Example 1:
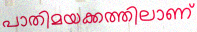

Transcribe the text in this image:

പാതിമയക്കത്തിലാണ്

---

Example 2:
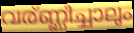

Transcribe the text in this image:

വര്ണ്ണിച്ചാലും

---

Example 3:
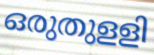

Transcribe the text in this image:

ഒരുതുളളി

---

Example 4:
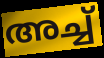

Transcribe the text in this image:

അച്ച്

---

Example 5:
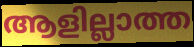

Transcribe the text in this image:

ആളില്ലാത്ത